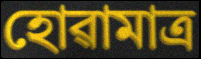
হোৱামাত্ৰ